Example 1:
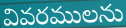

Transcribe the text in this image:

వివరములను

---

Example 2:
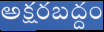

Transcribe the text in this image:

అక్షరబద్దం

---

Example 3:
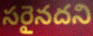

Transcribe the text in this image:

సరైనదని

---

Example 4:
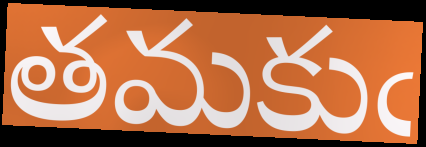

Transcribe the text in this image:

తమకుఁ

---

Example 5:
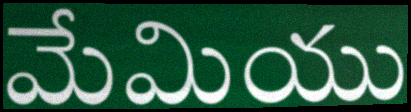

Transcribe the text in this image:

మేమియు